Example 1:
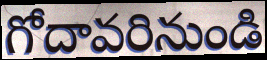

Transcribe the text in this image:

గోదావరినుండి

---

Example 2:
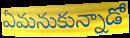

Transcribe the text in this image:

ఏమనుకున్నాడో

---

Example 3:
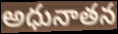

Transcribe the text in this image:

అధునాతన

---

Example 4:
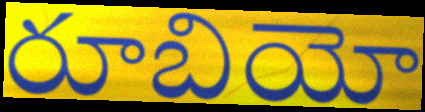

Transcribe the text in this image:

రూబియో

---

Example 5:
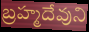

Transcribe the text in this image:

బ్రహ్మదేవుని